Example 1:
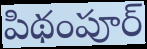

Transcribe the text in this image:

పిథంపూర్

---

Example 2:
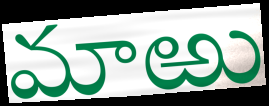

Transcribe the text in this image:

మాఱు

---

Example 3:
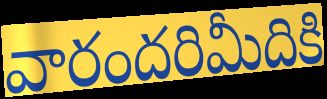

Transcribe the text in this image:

వారందరిమీదికి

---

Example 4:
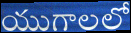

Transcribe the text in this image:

యుగాలలో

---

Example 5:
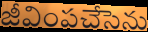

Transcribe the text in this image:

జీవింపచేసెను